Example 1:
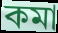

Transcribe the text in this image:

কমা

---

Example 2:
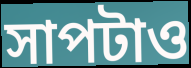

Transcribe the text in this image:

সাপটাও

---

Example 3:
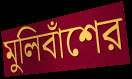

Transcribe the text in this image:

মুলিবাঁশের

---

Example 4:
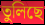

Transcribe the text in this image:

তুলিছে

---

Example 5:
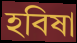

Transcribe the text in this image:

হবিষা